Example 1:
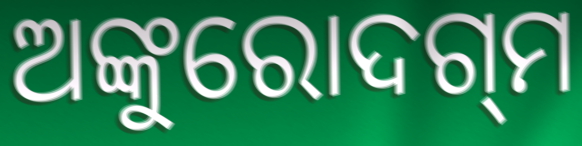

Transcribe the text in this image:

ଅଙ୍କୁରୋଦଗ୍‌ମ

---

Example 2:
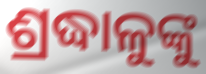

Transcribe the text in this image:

ଶ୍ରଦ୍ଧାଳୁଙ୍କୁ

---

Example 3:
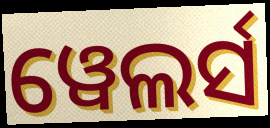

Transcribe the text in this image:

ୱେଲର୍ସ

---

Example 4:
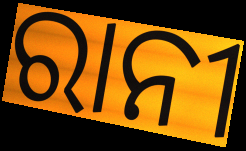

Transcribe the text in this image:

ରାନୀ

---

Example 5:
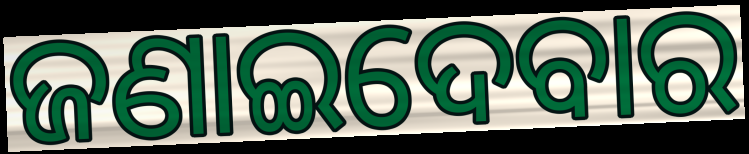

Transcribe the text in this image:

ଜଣାଇଦେବାର